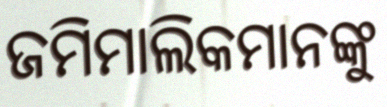
ଜମିମାଲିକମାନଙ୍କୁ